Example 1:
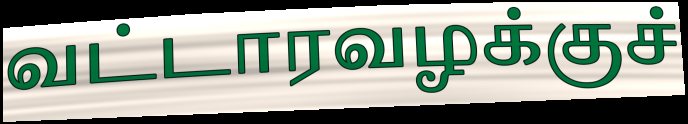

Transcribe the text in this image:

வட்டாரவழக்குச்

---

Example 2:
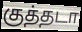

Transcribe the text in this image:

குத்தடா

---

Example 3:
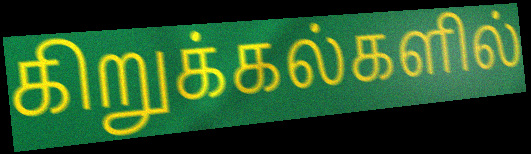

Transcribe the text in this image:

கிறுக்கல்களில்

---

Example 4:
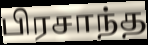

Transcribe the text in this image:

பிரசாந்த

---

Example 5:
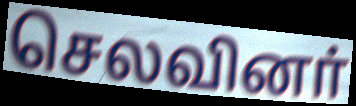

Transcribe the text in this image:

செலவினர்